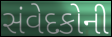
સંવેદકોની